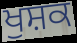
ਖੁਸ਼ਕ